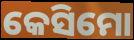
କେସିମୋ